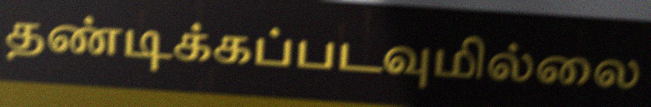
தண்டிக்கப்படவுமில்லை